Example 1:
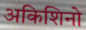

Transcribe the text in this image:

अकिशिनो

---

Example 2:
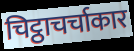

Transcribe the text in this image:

चिट्ठाचर्चाकार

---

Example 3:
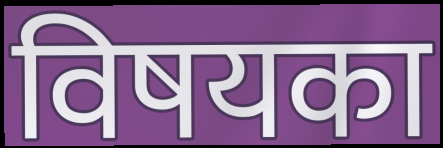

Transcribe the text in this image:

विषयका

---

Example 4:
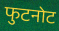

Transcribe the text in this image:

फुटनोट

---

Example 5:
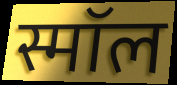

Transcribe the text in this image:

स्मॉल